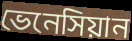
ভেনেসিয়ান